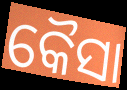
କୈସା